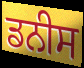
ਡਨੀਸ